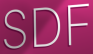
SDF